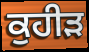
ਕੁਹੀੜ